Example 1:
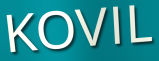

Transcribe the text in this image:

KOVIL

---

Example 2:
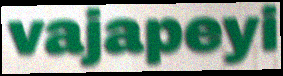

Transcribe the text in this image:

vajapeyi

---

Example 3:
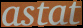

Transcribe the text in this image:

astat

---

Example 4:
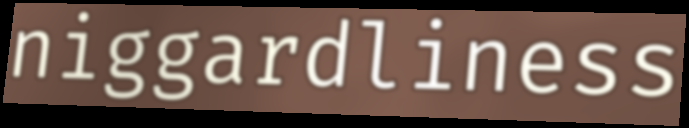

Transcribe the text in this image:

niggardliness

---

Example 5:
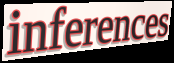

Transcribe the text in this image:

inferences